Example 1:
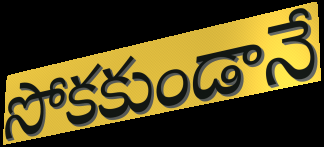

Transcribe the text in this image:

సోకకుండానే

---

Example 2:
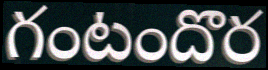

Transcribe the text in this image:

గంటందొర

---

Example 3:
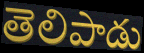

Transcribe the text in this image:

తెలిపాడు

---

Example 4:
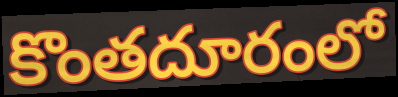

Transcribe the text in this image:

కొంతదూరంలో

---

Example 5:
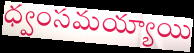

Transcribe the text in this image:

ధ్వంసమయ్యాయి